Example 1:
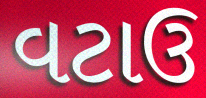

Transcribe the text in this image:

વટાઉ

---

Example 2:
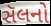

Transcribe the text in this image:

સૅલનો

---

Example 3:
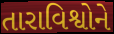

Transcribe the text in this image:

તારાવિશ્વોને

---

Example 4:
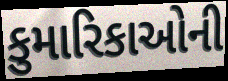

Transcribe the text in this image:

કુમારિકાઓની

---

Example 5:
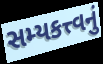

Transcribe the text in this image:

સમ્યકત્ત્વનું